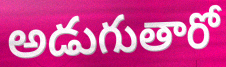
అడుగుతారో